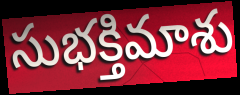
సుభక్తిమాశు